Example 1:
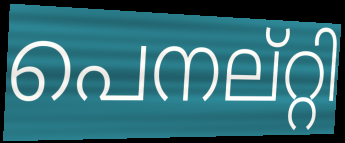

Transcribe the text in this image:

പെനല്റ്റി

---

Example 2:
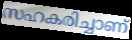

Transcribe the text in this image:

സഹകരിച്ചാണ്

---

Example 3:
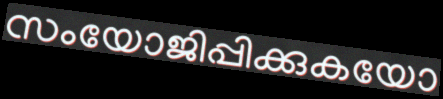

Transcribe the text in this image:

സംയോജിപ്പിക്കുകയോ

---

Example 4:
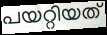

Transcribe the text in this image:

പയറ്റിയത്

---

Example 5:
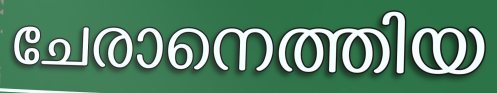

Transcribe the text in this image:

ചേരാനെത്തിയ